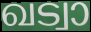
ഖട്വാ